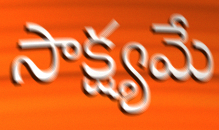
సాక్ష్యమే